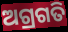
ଅଗ୍ରଗତି